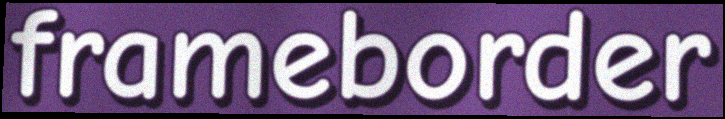
frameborder